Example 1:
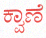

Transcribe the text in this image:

ಕ್ವಾಣೆ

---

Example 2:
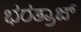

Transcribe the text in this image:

ಭರತ್ರಾಜ್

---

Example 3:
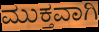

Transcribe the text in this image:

ಮುಕ್ತವಾಗಿ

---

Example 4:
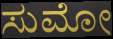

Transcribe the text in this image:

ಸುಮೋ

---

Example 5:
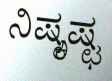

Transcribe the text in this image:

ನಿಷ್ಕೃಷ್ಟ